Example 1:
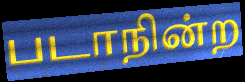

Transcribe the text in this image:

படாநின்ற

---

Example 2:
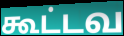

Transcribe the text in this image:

கூட்டவ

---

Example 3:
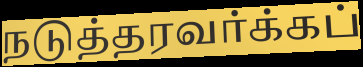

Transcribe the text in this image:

நடுத்தரவர்க்கப்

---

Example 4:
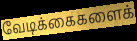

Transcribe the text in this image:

வேடிக்கைகளைக்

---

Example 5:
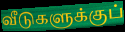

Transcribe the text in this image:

வீடுகளுக்குப்